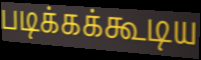
படிக்கக்கூடிய